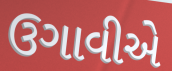
ઉગાવીએ